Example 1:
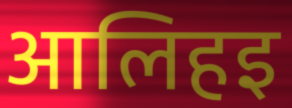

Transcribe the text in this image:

आलिहइ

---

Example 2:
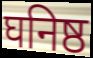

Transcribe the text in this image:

घनिष्ठ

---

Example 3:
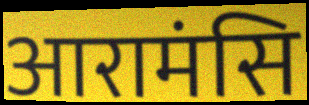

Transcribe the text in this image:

आरामंसि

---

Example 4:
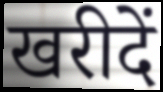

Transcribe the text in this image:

खरीदें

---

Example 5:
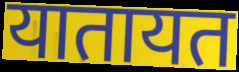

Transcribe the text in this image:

यातायत